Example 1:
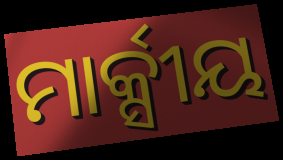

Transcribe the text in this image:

ମାର୍କ୍ସୀୟ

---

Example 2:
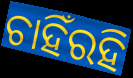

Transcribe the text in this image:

ଚାହିଁରହି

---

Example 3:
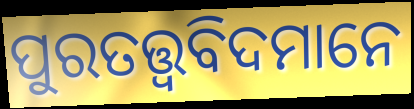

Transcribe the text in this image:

ପୁରତତ୍ତ୍ୱବିଦମାନେ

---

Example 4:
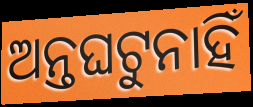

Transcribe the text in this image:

ଅନ୍ତଘଟୁନାହିଁ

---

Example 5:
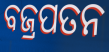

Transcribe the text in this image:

ବଜ୍ରପତନ